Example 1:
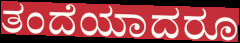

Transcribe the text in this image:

ತಂದೆಯಾದರೂ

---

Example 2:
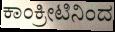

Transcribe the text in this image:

ಕಾಂಕ್ರೀಟಿನಿಂದ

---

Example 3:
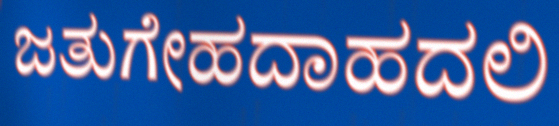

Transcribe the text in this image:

ಜತುಗೇಹದಾಹದಲಿ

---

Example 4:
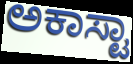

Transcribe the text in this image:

ಅಕಾಸ್ಟಾ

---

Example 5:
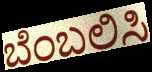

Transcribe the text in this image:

ಬೆಂಬಲಿಸಿ